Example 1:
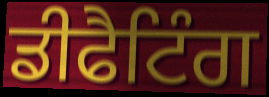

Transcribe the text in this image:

ਡੀਫੈਟਿੰਗ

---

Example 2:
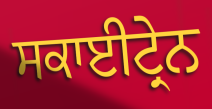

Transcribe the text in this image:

ਸਕਾਈਟ੍ਰੇਨ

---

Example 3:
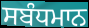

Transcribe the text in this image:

ਸਬੰਧਮਾਨ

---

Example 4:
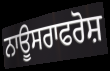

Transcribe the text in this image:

ਨਾਊਸਰਾਫਰੋਸ਼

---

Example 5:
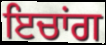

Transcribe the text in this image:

ਇਚਾਂਗ